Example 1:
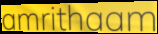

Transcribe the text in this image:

amrithaam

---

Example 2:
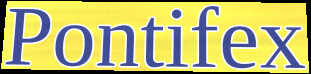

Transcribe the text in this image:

Pontifex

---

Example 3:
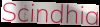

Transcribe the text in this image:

Scindhia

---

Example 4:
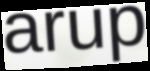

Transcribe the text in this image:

arup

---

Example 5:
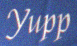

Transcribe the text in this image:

Yupp